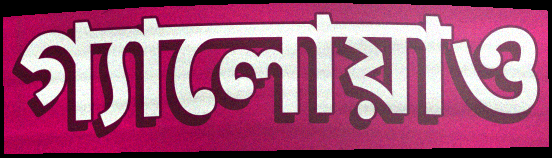
গ্যালোয়াও